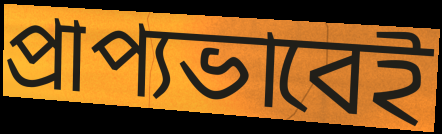
প্রাপ্যভাবেই